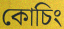
কোচিং